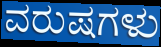
ವರುಷಗಳು